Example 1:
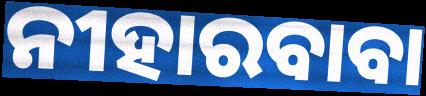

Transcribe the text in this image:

ନୀହାରବାବା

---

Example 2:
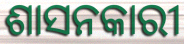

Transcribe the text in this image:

ଶାସନକାରୀ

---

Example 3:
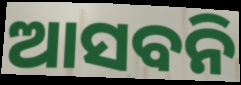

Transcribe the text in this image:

ଆସବନି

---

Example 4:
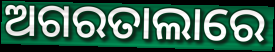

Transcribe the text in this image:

ଅଗରତାଲାରେ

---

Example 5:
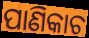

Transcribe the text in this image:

ପାଣିକାଚ